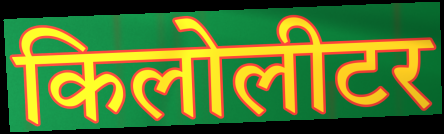
किलोलीटर